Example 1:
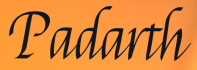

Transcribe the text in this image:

Padarth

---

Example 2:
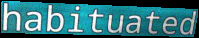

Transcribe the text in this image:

habituated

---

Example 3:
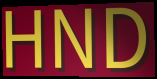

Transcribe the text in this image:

HND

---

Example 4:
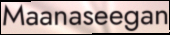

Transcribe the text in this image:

Maanaseegan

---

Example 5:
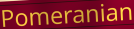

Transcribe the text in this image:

Pomeranian